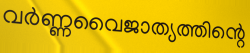
വർണ്ണവൈജാത്യത്തിന്റെ